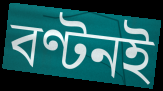
বণ্টনই